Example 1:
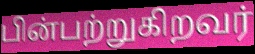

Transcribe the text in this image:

பின்பற்றுகிறவர்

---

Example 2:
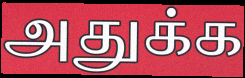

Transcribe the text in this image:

அதுக்க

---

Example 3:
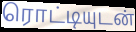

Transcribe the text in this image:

ரொட்டியுடன்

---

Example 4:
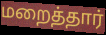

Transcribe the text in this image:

மறைத்தார்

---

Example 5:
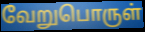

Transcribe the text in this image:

வேறுபொருள்